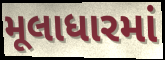
મૂલાધારમાં